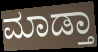
ಮಾಡ್ತಾ